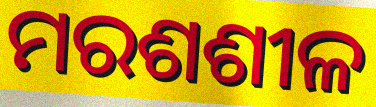
ମରଶଶୀଳ